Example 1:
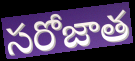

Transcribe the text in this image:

సరోజాత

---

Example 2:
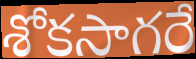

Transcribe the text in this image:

శోకసాగరే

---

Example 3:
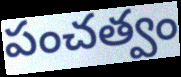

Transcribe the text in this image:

పంచత్వం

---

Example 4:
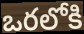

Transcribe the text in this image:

ఒరలోకి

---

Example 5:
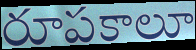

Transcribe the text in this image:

రూపకాలూ